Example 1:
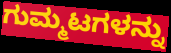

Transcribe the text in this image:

ಗುಮ್ಮಟಗಳನ್ನು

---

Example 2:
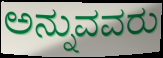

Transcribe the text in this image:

ಅನ್ನುವವರು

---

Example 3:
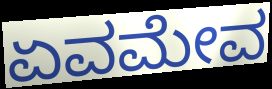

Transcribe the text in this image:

ಏವಮೇವ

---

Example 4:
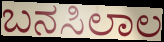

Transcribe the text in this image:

ಬನಸಿಲಾಲ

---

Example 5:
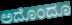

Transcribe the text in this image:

ಅದೊಂದೂ